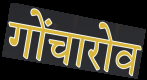
गोंचारोव